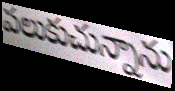
పలుకుచున్నాను